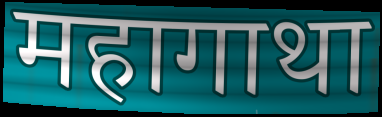
महागाथा